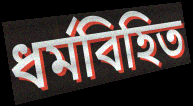
ধর্মবিহিত